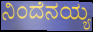
ನಿಂದೆನಯ್ಯ